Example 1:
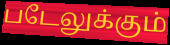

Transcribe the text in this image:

படேலுக்கும்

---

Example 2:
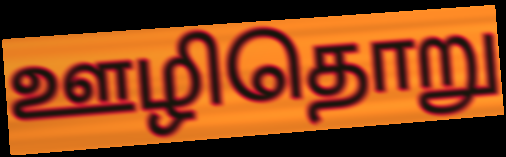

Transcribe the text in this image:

ஊழிதொறு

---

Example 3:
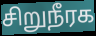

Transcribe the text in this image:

சிறுநீரக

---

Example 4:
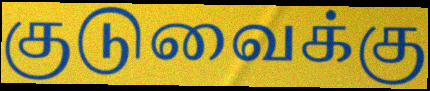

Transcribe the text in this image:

குடுவைக்கு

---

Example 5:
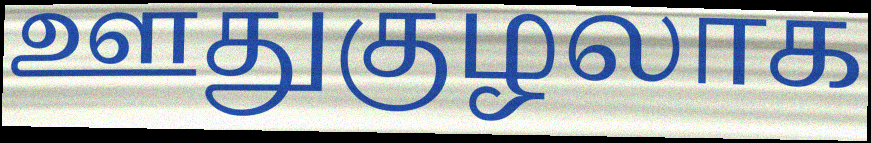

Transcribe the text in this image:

ஊதுகுழலாக